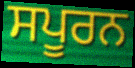
ਸਪੂਰਨ